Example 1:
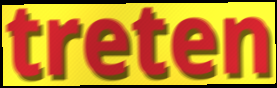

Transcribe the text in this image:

treten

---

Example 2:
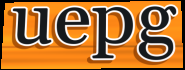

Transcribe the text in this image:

uepg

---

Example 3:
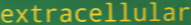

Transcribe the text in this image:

extracellular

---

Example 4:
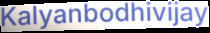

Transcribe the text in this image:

Kalyanbodhivijay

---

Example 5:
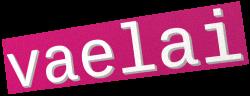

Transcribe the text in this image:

vaelai